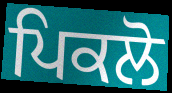
ਪਿਕਲੋ